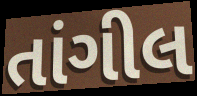
તાંગીલ